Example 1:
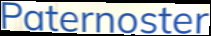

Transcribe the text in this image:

Paternoster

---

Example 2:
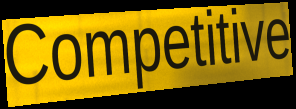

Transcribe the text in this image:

Competitive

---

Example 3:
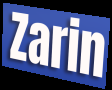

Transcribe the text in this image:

Zarin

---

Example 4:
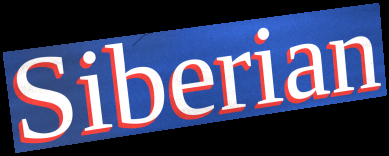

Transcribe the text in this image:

Siberian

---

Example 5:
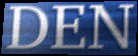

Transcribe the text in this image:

DEN